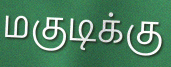
மகுடிக்கு